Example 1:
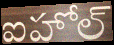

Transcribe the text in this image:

ఐహోల్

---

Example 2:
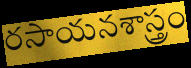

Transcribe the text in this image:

రసాయనశాస్త్రం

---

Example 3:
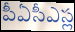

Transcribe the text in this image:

పీఏసీఎస్ల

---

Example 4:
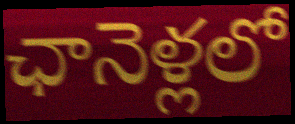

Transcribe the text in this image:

ఛానెళ్లలో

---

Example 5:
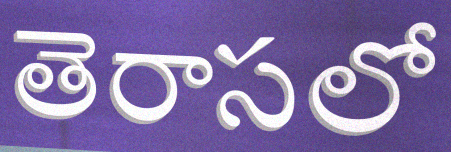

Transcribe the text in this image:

తెరాసలో